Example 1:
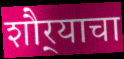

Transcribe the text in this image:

शौर्याचा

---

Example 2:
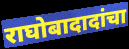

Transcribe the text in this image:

राघोबादादांचा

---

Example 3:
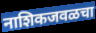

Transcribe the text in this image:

नाशिकजवळचा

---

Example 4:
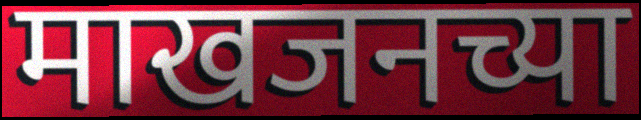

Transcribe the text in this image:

माखजनच्या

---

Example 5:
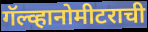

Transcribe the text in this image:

गॅल्व्हानोमीटराची